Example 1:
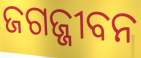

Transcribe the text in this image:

ଜଗଜ୍ଜୀବନ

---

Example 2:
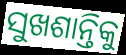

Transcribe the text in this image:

ସୁଖଶାନ୍ତିକୁ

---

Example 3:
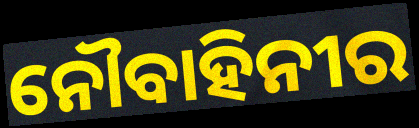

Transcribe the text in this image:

ନୌବାହିନୀର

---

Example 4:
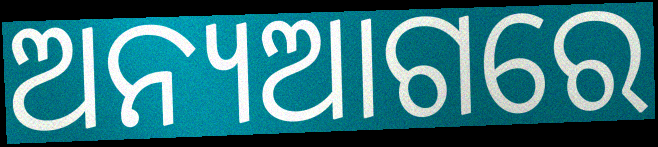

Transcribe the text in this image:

ଅନ୍ୟଆଗରେ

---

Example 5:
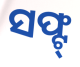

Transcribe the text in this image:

ସଫ୍ଟ୍